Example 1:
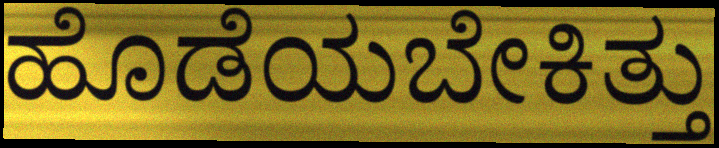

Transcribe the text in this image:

ಹೊಡೆಯಬೇಕಿತ್ತು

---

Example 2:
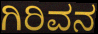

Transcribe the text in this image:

ಗಿರಿವನ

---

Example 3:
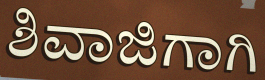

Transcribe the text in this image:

ಶಿವಾಜಿಗಾಗಿ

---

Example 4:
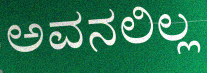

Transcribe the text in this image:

ಅವನಲಿಲ್ಲ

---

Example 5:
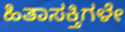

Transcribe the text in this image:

ಹಿತಾಸಕ್ತಿಗಳೇ